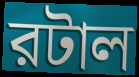
রটাল